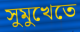
সুমুখেতে